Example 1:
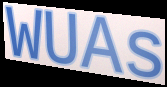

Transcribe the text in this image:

WUAs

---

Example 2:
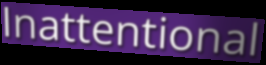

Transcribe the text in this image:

Inattentional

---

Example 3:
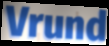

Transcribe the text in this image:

Vrund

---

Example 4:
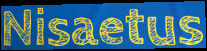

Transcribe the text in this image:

Nisaetus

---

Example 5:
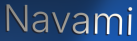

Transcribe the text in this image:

Navami